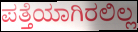
ಪತ್ತೆಯಾಗಿರಲಿಲ್ಲ